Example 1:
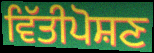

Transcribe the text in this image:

ਵਿੱਤੀਪੋਸ਼ਣ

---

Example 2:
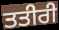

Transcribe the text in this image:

ਤਤੀਰੀ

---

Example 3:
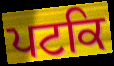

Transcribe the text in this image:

ਪਟਕਿ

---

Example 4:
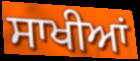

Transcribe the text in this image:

ਸਾਖੀਆਂ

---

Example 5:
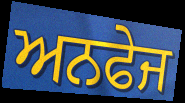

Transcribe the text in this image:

ਅਨਫੇਜ